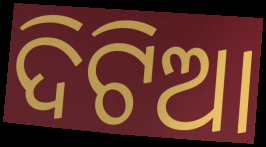
ଦିଟିଆ